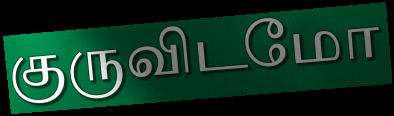
குருவிடமோ